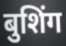
बुशिंग